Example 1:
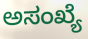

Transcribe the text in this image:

ಅಸಂಖ್ಯೆ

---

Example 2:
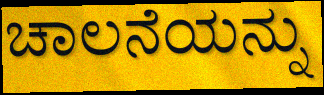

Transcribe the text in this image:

ಚಾಲನೆಯನ್ನು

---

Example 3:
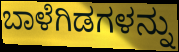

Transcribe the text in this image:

ಬಾಳೆಗಿಡಗಳನ್ನು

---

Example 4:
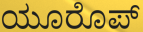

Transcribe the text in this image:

ಯೂರೊಪ್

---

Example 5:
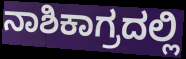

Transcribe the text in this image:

ನಾಶಿಕಾಗ್ರದಲ್ಲಿ